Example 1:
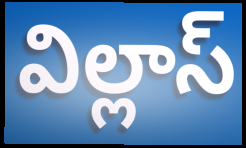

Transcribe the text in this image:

విల్లాస్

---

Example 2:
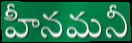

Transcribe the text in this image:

హీనమనీ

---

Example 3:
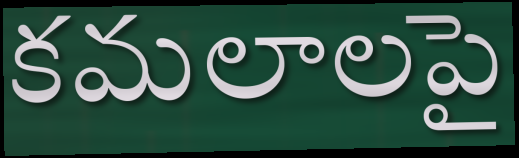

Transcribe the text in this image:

కమలాలపై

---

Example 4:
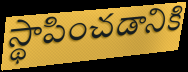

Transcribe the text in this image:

స్థాపించడానికి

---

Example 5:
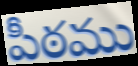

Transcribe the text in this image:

పీఠము